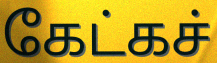
கேட்கச்